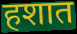
हशात